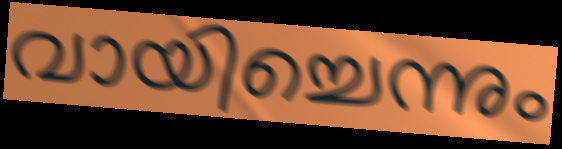
വായിച്ചെന്നും